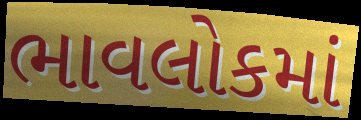
ભાવલોકમાં